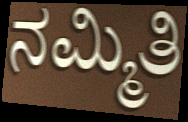
ನಮ್ಮಿತಿ